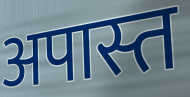
अपास्‍त